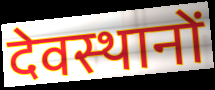
देवस्थानों